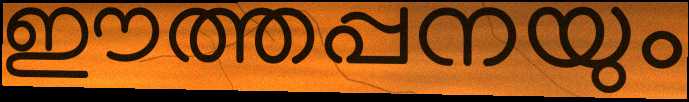
ഈത്തപ്പനയും